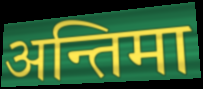
अन्तिमा